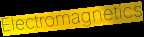
Electromagnetics